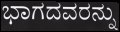
ಭಾಗದವರನ್ನು